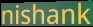
nishank